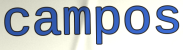
campos